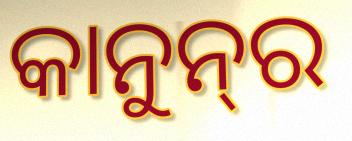
କାନୁନ୍‌ର